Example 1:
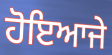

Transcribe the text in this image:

ਹੋਇਆਜੇ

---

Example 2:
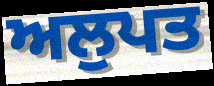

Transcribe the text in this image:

ਅਲੁਪਤ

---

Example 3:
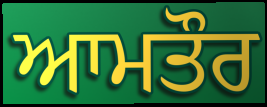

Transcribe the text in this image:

ਆਮਤੌਰ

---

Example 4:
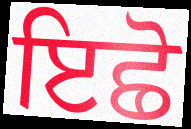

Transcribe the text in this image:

ਇਛੋ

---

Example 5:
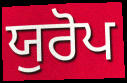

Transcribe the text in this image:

ਯੁਰੋਪ